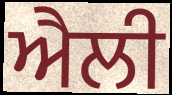
ਐਲੀ